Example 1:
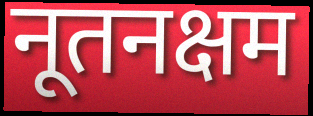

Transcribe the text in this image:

नूतनक्षम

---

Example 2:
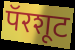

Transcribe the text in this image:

पॅरशूट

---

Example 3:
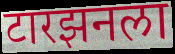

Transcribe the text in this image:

टारझनला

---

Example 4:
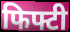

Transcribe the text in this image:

फिफ्टी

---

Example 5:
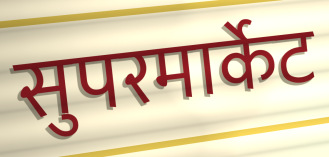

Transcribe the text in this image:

सुपरमार्केट